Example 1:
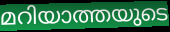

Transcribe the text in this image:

മറിയാത്തയുടെ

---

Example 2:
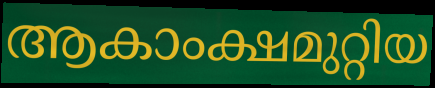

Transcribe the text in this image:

ആകാംക്ഷമുറ്റിയ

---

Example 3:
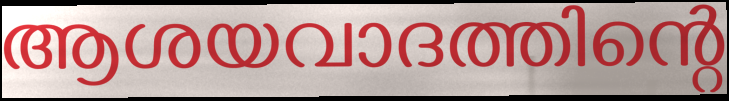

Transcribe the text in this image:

ആശയവാദത്തിന്റെ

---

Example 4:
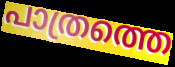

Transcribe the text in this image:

പാത്രത്തെ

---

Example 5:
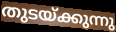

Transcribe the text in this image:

തുടയ്ക്കുന്നു